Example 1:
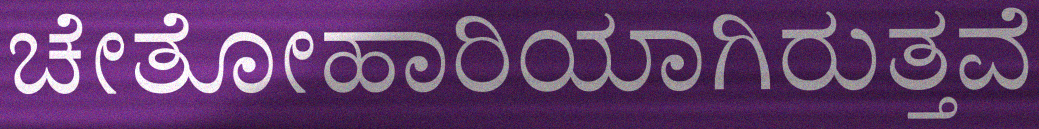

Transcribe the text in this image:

ಚೇತೋಹಾರಿಯಾಗಿರುತ್ತವೆ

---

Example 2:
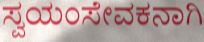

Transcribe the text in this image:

ಸ್ವಯಂಸೇವಕನಾಗಿ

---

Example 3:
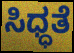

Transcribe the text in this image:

ಸಿಧ್ಧತೆ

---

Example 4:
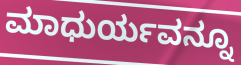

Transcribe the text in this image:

ಮಾಧುರ್ಯವನ್ನೂ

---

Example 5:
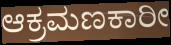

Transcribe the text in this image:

ಆಕ್ರಮಣಕಾರೀ